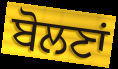
ਬੋਲਣਾਂ